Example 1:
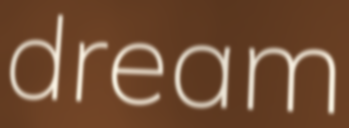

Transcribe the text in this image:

dream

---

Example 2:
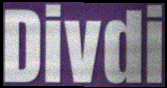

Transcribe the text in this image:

Divdi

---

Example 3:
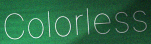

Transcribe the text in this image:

Colorless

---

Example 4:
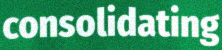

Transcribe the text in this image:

consolidating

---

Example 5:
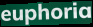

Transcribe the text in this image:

euphoria